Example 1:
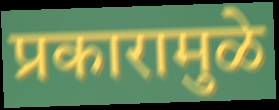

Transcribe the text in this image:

प्रकारामुळे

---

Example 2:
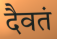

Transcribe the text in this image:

दैवतं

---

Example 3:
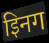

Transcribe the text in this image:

इिनग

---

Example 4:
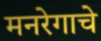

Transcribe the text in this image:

मनरेगाचे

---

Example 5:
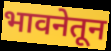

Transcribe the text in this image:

भावनेतून